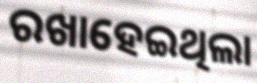
ରଖାହେଇଥିଲା